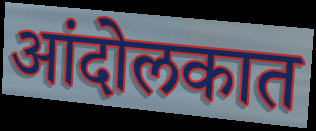
आंदोलकात